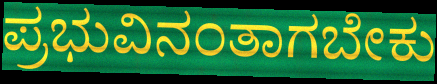
ಪ್ರಭುವಿನಂತಾಗಬೇಕು